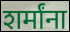
शर्मांना